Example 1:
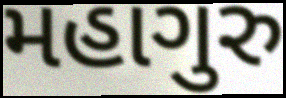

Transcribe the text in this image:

મહાગુરુ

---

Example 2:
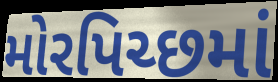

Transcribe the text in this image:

મોરપિચ્છમાં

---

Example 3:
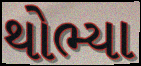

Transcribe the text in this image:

થોભ્યા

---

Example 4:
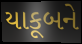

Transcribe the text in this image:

યાકૂબને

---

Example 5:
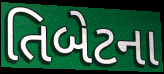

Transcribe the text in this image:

તિબેટના